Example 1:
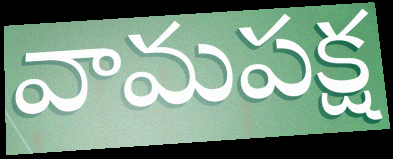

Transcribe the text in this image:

వామపక్ష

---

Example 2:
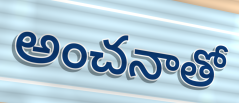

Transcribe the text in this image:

అంచనాతో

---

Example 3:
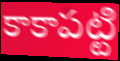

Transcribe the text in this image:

కాకాపట్టి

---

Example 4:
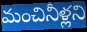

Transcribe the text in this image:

మంచినీళ్లని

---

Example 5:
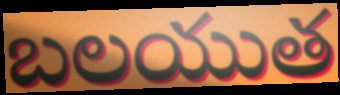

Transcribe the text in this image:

బలయుత